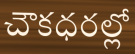
చౌకధరల్లో